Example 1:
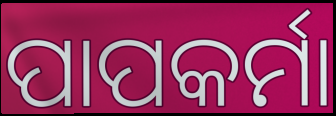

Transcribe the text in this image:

ପାପକର୍ମା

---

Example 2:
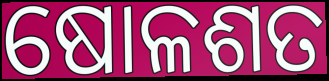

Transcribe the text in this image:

ଷୋଳଶତ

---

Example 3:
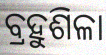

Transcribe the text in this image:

ବ୍ରହୁଶିଳା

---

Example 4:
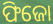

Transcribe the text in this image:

ଫିଜୋ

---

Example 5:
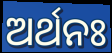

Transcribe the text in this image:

ଅର୍ଥନଃ